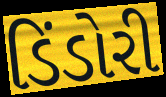
ડિંડોરી